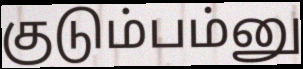
குடும்பம்னு